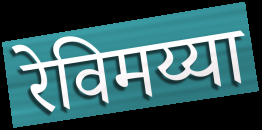
रेविमय्या